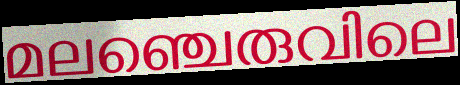
മലഞ്ചെരുവിലെ